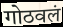
गोठवलं